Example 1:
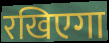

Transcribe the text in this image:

रखिएगा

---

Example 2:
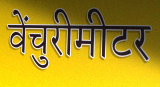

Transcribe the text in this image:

वेंचुरीमीटर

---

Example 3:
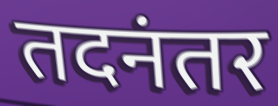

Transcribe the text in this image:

तदनंतर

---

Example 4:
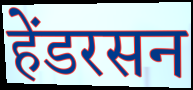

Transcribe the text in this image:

हेंडरसन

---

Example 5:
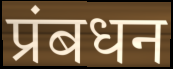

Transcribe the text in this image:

प्रंबधन